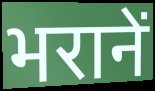
भरानें